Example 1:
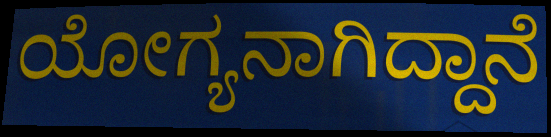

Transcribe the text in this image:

ಯೋಗ್ಯನಾಗಿದ್ದಾನೆ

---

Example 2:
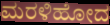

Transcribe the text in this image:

ಮರಳಿಹೋದ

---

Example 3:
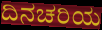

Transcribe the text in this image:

ದಿನಚರಿಯ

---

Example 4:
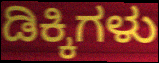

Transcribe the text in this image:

ಡಿಕ್ಕಿಗಳು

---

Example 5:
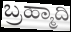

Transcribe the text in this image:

ಬ್ರಹ್ಮಾದಿ